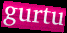
gurtu